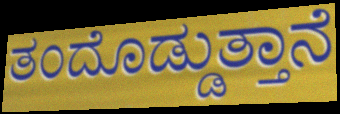
ತಂದೊಡ್ಡುತ್ತಾನೆ